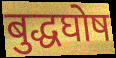
बुद्धघोष